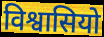
विश्वासियो